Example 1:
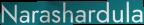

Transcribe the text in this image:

Narashardula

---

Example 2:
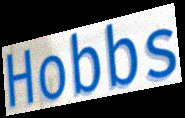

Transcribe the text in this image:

Hobbs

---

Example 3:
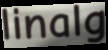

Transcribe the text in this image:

linalg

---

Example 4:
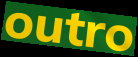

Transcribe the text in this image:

outro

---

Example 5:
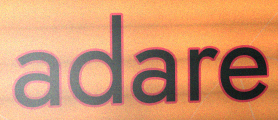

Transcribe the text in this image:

adare